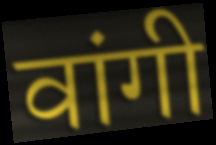
वांगी